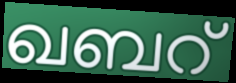
ഖബറ്